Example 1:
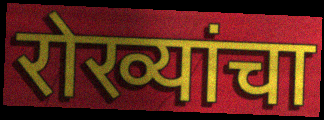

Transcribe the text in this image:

रोख्यांचा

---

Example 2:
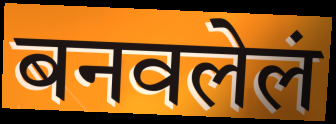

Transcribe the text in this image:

बनवलेलं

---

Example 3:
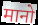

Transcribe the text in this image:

मानो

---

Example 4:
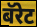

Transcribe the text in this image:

बॅरेट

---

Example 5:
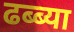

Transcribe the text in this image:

ढब्ब्या